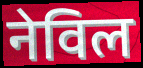
नेविल